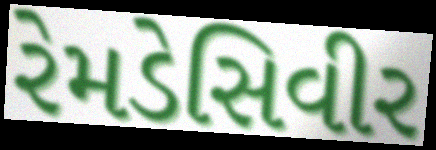
રેમડેસિવીર